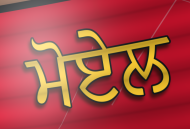
ਮੋਏਲ